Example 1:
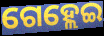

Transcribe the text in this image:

ଗେହ୍ଲେଇ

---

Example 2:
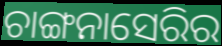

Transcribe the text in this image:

ଚାଙ୍ଗନାସେରିର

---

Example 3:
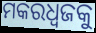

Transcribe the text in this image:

ମକରଧ୍ୱଜକୁ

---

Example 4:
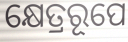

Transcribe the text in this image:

କ୍ଷେତ୍ରରୂପେ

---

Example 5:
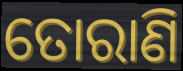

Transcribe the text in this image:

ତୋରାଣି